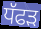
ਧੱਫੜ